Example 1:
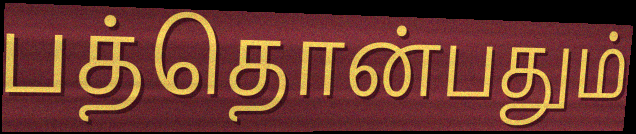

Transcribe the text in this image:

பத்தொன்பதும்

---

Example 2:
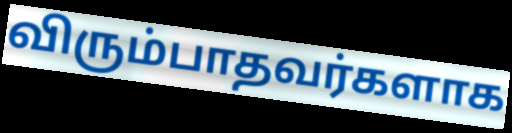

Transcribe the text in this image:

விரும்பாதவர்களாக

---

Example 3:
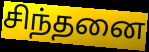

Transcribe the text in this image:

சிந்தனை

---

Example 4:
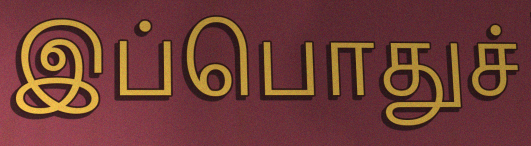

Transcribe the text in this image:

இப்பொதுச்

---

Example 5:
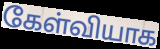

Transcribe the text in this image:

கேள்வியாக